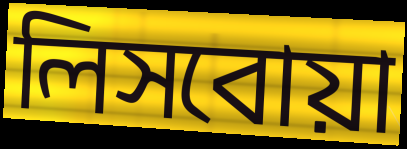
লিসবোয়া